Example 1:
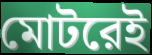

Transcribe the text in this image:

মোটরেই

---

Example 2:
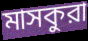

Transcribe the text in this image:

মাসকুরা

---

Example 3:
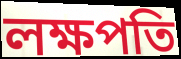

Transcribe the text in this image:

লক্ষপতি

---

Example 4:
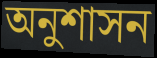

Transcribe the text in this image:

অনুশাসন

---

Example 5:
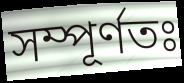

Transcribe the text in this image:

সম্পূর্ণতঃ